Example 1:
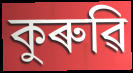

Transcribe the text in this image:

কুৰুৱি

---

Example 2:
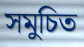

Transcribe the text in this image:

সমুচিত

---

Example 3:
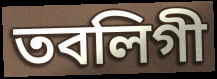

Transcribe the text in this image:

তবলিগী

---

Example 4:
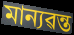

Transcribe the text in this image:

মান্যৱন্ত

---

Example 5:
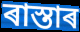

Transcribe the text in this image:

ৰাস্তাৰ